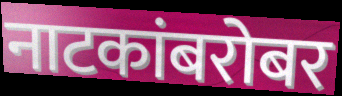
नाटकांबरोबर